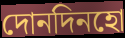
দোনদিনহো